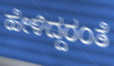
ಹೇಳಿದ್ದರಂತೆ